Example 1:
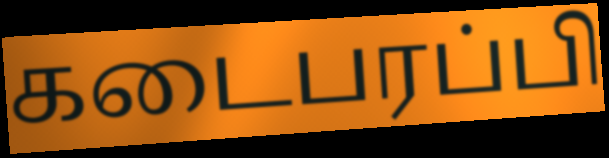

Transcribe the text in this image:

கடைபரப்பி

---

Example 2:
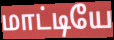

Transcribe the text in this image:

மாட்டியே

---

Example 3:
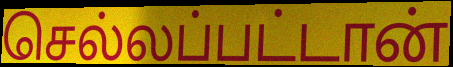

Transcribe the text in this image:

செல்லப்பட்டான்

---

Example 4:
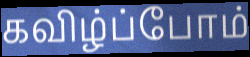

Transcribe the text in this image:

கவிழ்ப்போம்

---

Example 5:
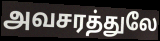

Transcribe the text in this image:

அவசரத்துலே